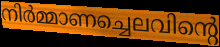
നിർമ്മാണച്ചെലവിന്റെ